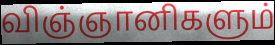
விஞ்ஞானிகளும்